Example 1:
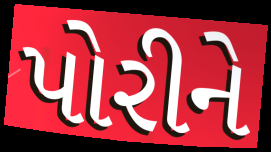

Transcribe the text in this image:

પોરીને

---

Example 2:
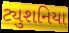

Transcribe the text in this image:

ટ્યુશનિયા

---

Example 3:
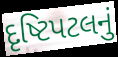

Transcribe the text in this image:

દૃષ્ટિપટલનું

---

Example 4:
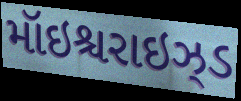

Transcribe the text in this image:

મૉઇશ્ચરાઇઝ્ડ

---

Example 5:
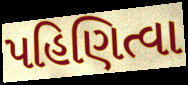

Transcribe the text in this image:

પહિણિત્વા